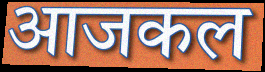
आजकल